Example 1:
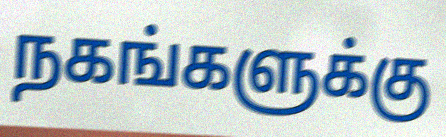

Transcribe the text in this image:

நகங்களுக்கு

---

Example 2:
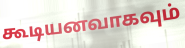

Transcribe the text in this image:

கூடியனவாகவும்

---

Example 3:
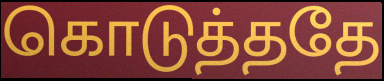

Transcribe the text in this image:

கொடுத்ததே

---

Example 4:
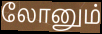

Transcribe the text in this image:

லோனும்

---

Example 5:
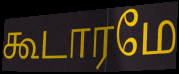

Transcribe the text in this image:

கூடாரமே